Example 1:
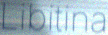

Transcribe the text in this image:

Libitina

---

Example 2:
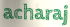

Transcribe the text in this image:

acharaj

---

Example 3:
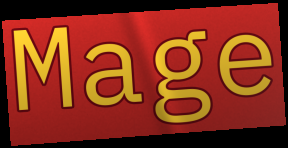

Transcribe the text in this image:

Mage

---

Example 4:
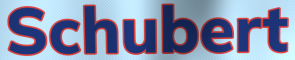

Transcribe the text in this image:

Schubert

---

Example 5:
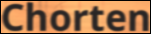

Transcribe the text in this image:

Chorten